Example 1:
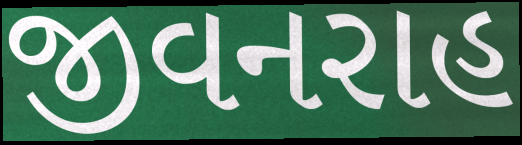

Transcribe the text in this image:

જીવનરાહ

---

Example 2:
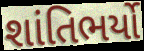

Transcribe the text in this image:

શાંતિભર્યો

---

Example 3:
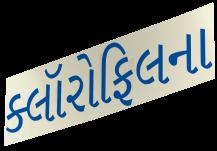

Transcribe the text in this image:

ક્લૉરોફિલના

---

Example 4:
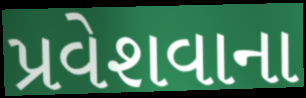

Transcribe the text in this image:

પ્રવેશવાના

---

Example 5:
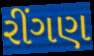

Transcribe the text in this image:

રીંગણ